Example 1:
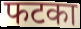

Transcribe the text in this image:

फटका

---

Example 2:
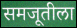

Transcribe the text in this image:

समजूतीला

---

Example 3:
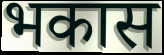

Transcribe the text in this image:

भकास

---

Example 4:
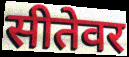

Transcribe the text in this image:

सीतेवर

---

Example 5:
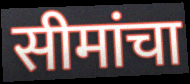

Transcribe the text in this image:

सीमांचा